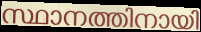
സ്ഥാനത്തിനായി